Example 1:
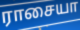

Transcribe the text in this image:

ராசையா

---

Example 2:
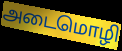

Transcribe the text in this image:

அடைமொழி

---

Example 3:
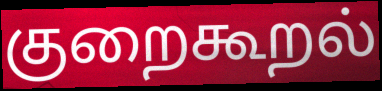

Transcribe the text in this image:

குறைகூறல்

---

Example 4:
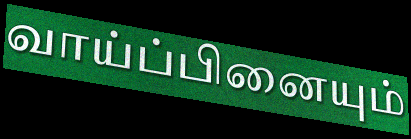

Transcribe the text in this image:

வாய்ப்பினையும்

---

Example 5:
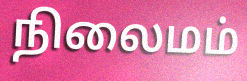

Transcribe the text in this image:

நிலைமம்